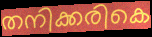
തനിക്കരികെ